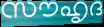
സൗഹൃദ